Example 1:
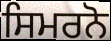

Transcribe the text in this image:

ਸਿਮਰਨੋ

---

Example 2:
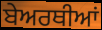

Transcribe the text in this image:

ਬੇਅਰਥੀਆਂ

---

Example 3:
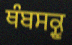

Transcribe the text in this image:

ਥੰਬਸਕ੍ਰੂ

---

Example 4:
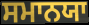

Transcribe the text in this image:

ਸਮਾਨਯਾ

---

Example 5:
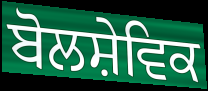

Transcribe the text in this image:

ਬੋਲਸ਼ੇਵਿਕ